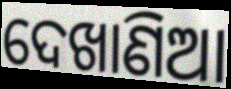
ଦେଖାଣିଆ